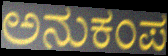
ಅನುಕಂಪ